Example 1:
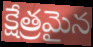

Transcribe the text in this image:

క్షేత్రమైన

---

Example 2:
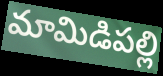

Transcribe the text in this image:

మామిడిపల్లి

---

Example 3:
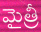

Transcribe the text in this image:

మైత్రీ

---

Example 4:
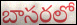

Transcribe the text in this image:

బాసరలో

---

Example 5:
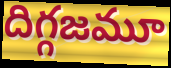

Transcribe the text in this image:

దిగ్గజమూ